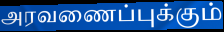
அரவணைப்புக்கும்